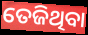
ତେଜିଥିବା